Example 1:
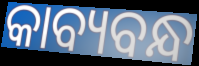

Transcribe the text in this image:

କାବ୍ୟବନ୍ଧ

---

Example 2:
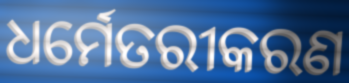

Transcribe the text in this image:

ଧର୍ମେତରୀକରଣ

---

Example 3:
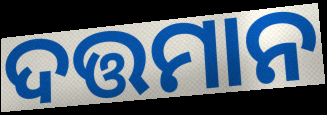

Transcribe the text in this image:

ଦତ୍ତମାନ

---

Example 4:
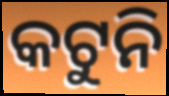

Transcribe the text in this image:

କଟୁନି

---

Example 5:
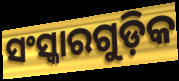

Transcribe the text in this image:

ସଂସ୍କାରଗୁଡ଼ିକ